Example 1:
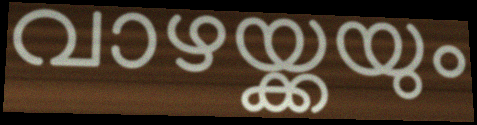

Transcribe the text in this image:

വാഴയ്ക്കയും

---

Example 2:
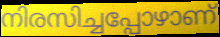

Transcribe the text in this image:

നിരസിച്ചപ്പോഴാണ്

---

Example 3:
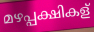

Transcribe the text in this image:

മഴപ്പക്ഷികള്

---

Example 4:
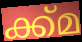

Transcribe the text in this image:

ക്ക്മ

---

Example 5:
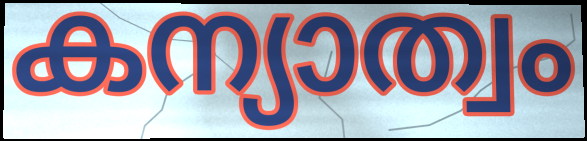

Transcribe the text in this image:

കന്യാത്വം